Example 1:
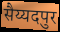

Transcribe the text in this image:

सैय्यदपुर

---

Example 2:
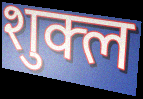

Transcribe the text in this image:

शुक्‍ल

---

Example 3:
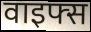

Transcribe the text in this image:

वाइफ्स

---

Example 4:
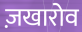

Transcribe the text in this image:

ज़खारोव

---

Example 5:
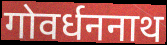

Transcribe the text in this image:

गोवर्धननाथ